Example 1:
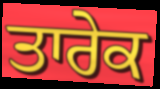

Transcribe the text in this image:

ਤਾਰੇਕ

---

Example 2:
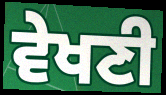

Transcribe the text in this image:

ਵੇਖਣੀ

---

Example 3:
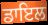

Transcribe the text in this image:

ਡਾਇਲ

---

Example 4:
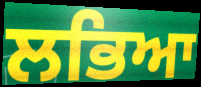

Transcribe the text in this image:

ਲਭਿਆ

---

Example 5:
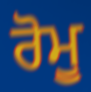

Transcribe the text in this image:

ਰੋਮੂ